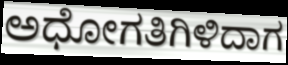
ಅಧೋಗತಿಗಿಳಿದಾಗ